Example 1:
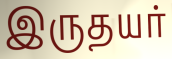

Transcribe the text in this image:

இருதயர்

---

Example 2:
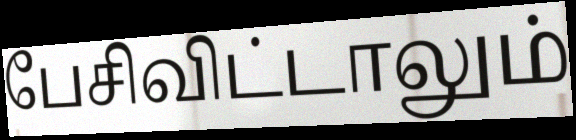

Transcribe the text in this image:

பேசிவிட்டாலும்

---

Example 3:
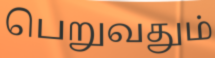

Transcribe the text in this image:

பெறுவதும்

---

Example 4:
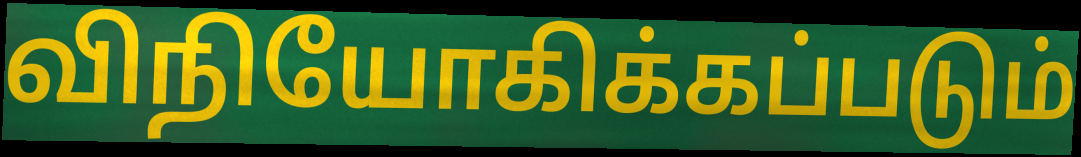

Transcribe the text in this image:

விநியோகிக்கப்படும்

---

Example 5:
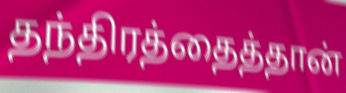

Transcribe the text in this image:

தந்திரத்தைத்தான்